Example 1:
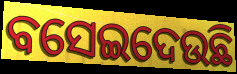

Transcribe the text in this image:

ବସେଇଦେଉଛି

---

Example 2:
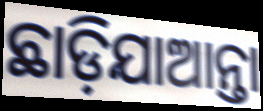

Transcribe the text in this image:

ଛାଡ଼ିଯାଆନ୍ତା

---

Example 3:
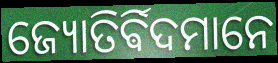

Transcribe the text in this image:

ଜ୍ୟୋତିର୍ଵିଦମାନେ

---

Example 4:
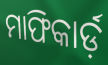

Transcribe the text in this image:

ମାଫିକାର୍ଡ଼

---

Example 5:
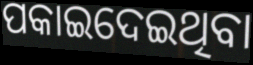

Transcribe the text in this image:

ପକାଇଦେଇଥିବା